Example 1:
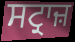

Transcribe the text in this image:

ਸਟ੍ਰਾਜ਼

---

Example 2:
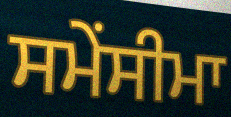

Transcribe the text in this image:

ਸਮੇਂਸੀਮਾ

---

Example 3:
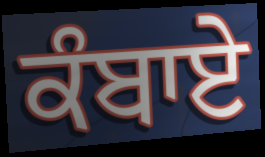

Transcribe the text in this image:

ਕੰਬਾਏ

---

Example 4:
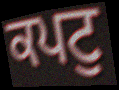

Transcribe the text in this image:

ਕਪਟੁ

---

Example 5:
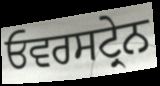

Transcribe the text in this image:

ਓਵਰਸਟ੍ਰੇਨ